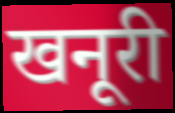
खनूरी